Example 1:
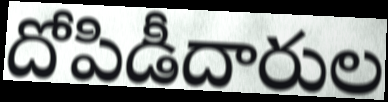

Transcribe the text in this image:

దోపిడీదారుల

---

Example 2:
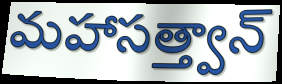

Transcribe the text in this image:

మహాసత్త్వాన్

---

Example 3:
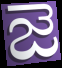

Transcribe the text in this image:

జె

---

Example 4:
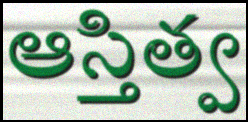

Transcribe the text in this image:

ఆస్తిత్వ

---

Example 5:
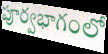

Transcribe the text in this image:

పూర్వభాగంలో